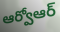
ఆర్వోఆర్